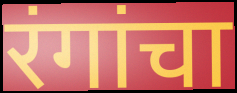
रंगांचा